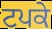
ਟਪਕੇ